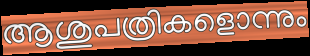
ആശുപത്രികളൊന്നും